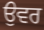
ਉਵਰ